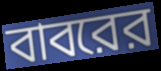
বাবরের